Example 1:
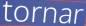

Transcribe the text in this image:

tornar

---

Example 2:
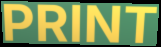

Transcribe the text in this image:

PRINT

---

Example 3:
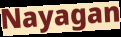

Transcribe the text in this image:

Nayagan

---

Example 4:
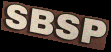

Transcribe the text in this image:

SBSP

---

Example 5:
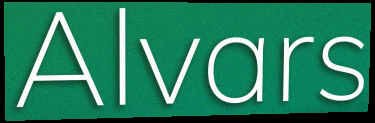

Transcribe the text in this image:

Alvars